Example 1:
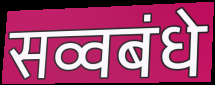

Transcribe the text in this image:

सव्वबंधे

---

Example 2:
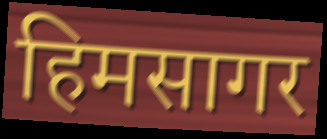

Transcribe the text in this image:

हिमसागर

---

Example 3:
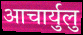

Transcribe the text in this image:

आचार्युलु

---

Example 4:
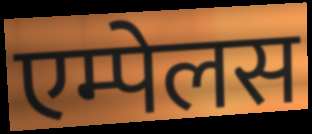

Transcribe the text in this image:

एम्पेलस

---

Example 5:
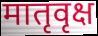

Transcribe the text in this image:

मातृवृक्ष